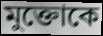
মুক্তোকে